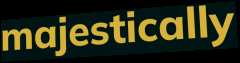
majestically